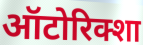
ऑटोरिक्शा